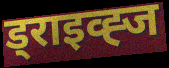
ड्राइव्ह्ज